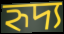
হৃদ্য